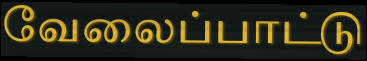
வேலைப்பாட்டு